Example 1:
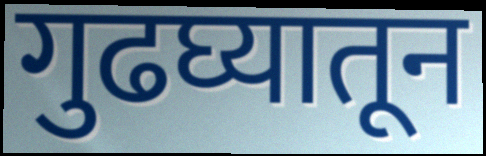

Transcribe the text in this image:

गुढघ्यातून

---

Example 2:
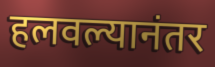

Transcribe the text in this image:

हलवल्यानंतर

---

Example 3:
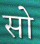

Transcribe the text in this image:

सो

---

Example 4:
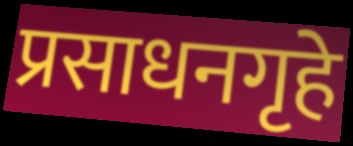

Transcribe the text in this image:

प्रसाधनगृहे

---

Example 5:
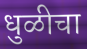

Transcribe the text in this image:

धुळीचा